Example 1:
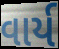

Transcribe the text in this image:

વાર્ય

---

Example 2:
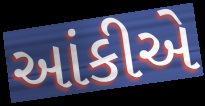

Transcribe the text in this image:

આંકીએ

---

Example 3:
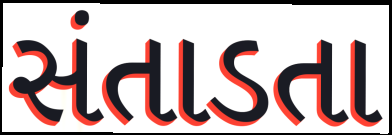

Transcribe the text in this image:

સંતાડતા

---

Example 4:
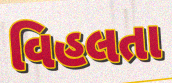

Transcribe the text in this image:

વિહલતા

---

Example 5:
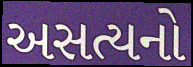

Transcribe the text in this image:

અસત્યનો